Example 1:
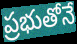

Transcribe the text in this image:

ప్రభుతోనే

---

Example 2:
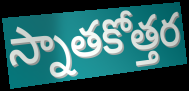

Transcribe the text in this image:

స్నాతకోత్తర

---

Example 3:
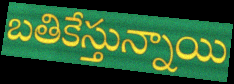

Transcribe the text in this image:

బతికేస్తున్నాయి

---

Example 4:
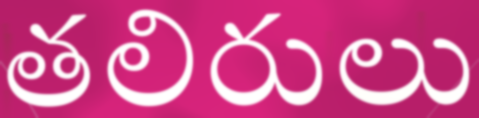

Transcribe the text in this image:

తలిరులు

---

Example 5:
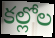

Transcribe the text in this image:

కల్లోల